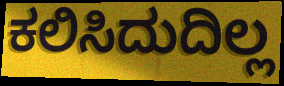
ಕಲಿಸಿದುದಿಲ್ಲ